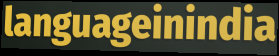
languageinindia